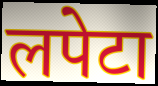
लपेटा